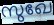
സുഖേ